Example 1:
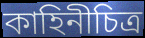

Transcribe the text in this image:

কাহিনীচিত্র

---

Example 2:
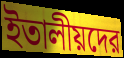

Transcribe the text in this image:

ইতালীয়দের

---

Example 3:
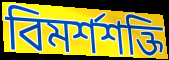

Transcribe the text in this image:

বিমর্শশক্তি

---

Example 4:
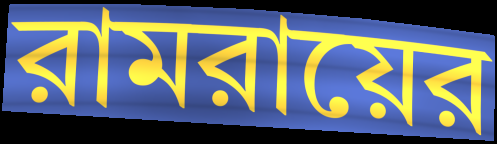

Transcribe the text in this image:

রামরায়ের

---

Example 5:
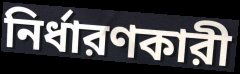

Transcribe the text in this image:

নির্ধারণকারী